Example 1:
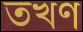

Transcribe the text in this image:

তখণ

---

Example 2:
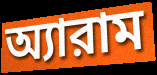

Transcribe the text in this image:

অ্যারাম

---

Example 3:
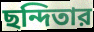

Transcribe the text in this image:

ছন্দিতার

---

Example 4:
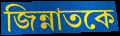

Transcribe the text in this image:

জিন্নাতকে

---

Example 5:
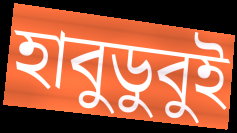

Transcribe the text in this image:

হাবুডুবুই